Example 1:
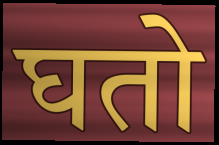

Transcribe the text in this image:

घतो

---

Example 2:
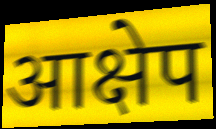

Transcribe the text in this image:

आक्षेप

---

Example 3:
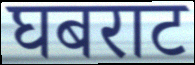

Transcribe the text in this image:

घबराट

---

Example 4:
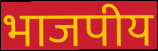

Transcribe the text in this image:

भाजपीय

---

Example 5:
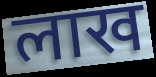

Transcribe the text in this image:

लाख